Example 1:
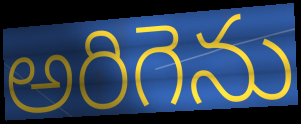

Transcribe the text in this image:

అరిగెను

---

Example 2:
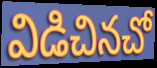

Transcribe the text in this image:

విడిచినచో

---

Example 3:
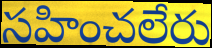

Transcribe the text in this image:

సహించలేరు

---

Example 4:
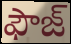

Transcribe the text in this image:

ఫౌజ్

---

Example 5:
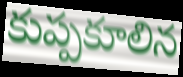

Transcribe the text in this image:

కుప్పకూలిన